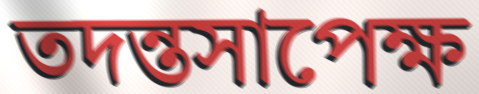
তদন্তসাপেক্ষ